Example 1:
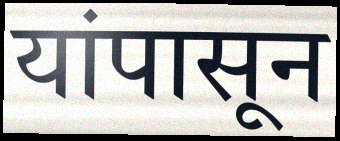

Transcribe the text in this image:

यांपासून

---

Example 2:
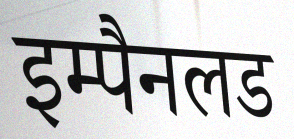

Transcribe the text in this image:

इम्पैनलड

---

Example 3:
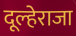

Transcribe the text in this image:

दूल्हेराजा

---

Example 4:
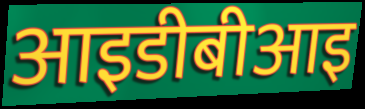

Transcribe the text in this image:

आइडीबीआइ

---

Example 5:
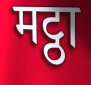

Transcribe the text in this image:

मट्ठा